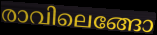
രാവിലെങ്ങോ